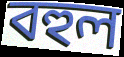
বহুল